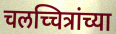
चलच्चित्रांच्या